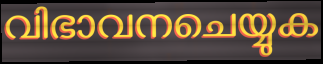
വിഭാവനചെയ്യുക